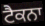
ਟੈਕਨਾ